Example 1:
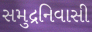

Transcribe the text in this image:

સમુદ્રનિવાસી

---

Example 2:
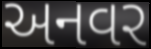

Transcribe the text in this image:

અનવર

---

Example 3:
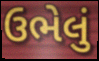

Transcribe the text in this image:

ઉભેલું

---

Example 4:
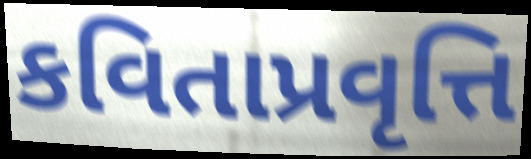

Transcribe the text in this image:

કવિતાપ્રવૃત્તિ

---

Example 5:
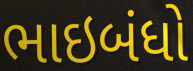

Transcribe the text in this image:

ભાઇબંધો